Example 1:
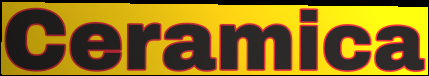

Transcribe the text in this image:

Ceramica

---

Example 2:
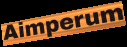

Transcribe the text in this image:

Aimperum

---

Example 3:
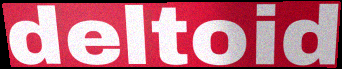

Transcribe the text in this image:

deltoid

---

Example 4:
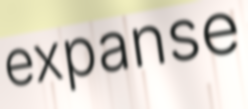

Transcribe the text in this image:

expanse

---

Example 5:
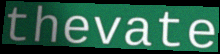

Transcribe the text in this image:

thevate